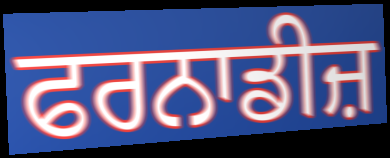
ਫਰਨਾਡੀਜ਼